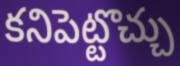
కనిపెట్టొచ్చు